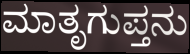
ಮಾತೃಗುಪ್ತನು